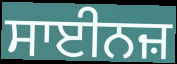
ਸਾਈਨਜ਼